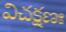
విచక్షణః